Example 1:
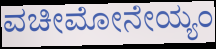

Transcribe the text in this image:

ವಚೀಮೋನೇಯ್ಯಂ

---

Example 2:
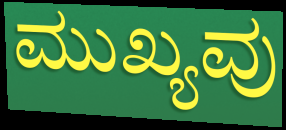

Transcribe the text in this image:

ಮುಖ್ಯವು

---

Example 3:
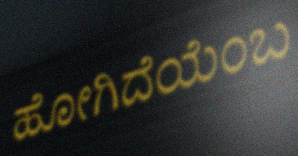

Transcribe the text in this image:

ಹೋಗಿದೆಯೆಂಬ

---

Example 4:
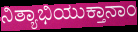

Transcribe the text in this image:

ನಿತ್ಯಾಭಿಯುಕ್ತಾನಾಂ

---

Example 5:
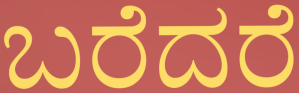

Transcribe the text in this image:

ಬರೆದರೆ